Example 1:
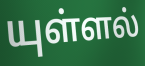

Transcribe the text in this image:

யுள்ளல்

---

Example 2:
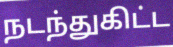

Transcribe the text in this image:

நடந்துகிட்ட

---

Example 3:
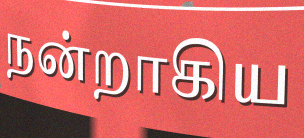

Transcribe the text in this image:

நன்றாகிய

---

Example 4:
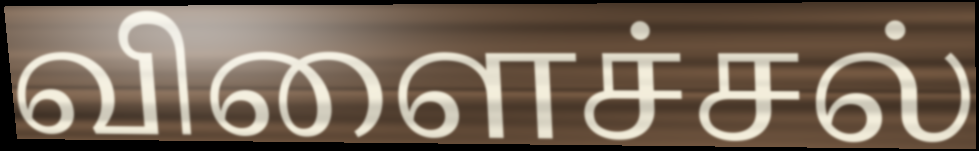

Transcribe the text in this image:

விளைச்சல்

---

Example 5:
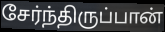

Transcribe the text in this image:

சேர்ந்திருப்பான்